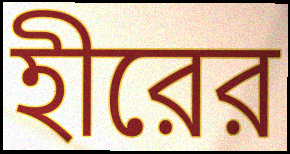
হীরের